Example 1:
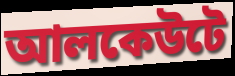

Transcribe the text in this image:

আলকেউটে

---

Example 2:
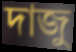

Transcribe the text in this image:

দাজু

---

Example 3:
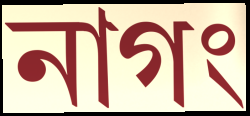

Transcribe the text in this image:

নাগং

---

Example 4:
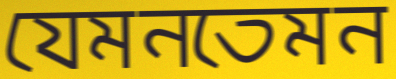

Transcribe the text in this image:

যেমনতেমন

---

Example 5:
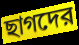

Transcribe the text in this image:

ছাগদের